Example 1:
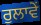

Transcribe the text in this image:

ਰੁਲਾਵੇਂ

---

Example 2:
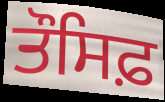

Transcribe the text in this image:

ਤੌਸਿਫ਼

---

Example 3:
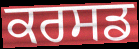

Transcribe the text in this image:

ਕਰਸਡ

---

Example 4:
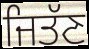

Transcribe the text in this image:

ਜਿਤੱਣ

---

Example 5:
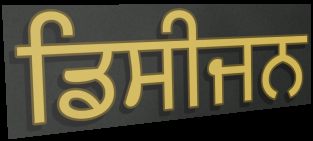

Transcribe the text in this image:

ਡਿਸੀਜਨ